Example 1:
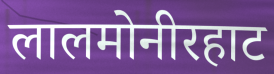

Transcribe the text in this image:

लालमोनीरहाट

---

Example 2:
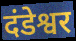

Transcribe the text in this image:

दंडेश्वर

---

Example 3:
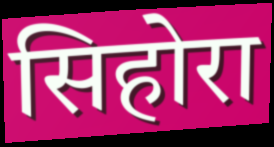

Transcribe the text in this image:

सिहोरा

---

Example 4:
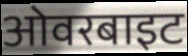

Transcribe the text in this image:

ओवरबाइट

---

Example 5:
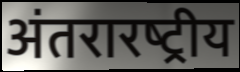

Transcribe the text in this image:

अंतरारष्ट्रीय